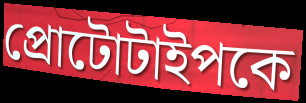
প্রোটোটাইপকে